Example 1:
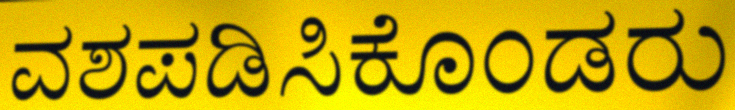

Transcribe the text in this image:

ವಶಪಡಿಸಿಕೊಂಡರು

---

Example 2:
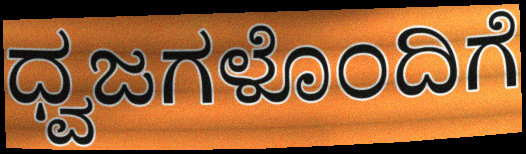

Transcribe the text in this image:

ಧ್ವಜಗಳೊಂದಿಗೆ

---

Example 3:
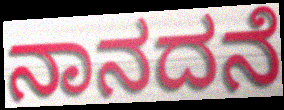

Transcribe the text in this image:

ನಾನದನೆ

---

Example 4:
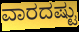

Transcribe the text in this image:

ವಾರದಷ್ಟು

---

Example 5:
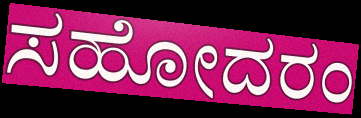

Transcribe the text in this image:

ಸಹೋದರಂ